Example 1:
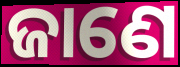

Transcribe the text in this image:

ଜାଣେ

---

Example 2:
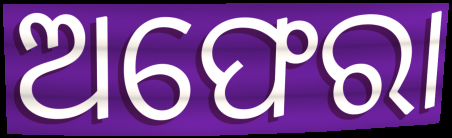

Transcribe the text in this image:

ଅଫେରା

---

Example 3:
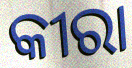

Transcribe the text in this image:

କୀରା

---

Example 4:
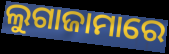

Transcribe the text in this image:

ଲୁଗାଜାମାରେ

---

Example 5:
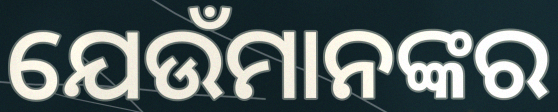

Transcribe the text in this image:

ଯେଉଁମାନଙ୍କର